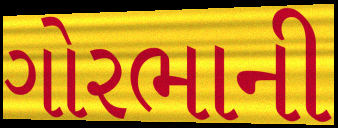
ગોરભાની